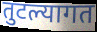
तुटल्यागत